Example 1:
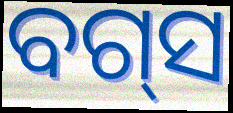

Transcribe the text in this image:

ବଗ୍‌ସ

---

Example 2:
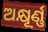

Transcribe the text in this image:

ଅକ୍ଷୂର୍ଣ୍ଣ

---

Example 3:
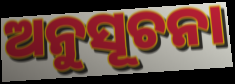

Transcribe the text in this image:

ଅନୁସୂଚନା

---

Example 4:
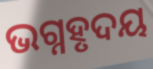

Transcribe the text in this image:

ଭଗ୍ନହୃଦୟ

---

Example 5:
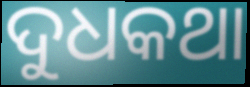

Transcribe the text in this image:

ଦୁଧକଥା